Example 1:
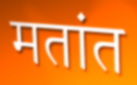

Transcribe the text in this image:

मतांत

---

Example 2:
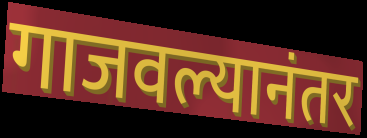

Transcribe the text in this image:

गाजवल्यानंतर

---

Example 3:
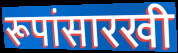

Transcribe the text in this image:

रूपांसारखी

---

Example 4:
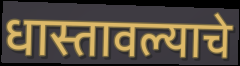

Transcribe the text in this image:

धास्तावल्याचे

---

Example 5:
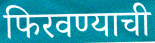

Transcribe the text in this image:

फिरवण्याची